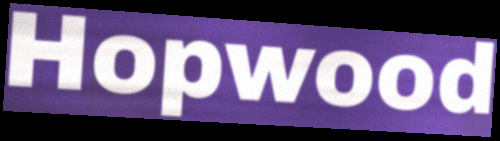
Hopwood